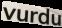
vurdu